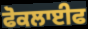
ਫੋਕਲਾਈਫ